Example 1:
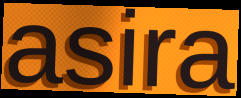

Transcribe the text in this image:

asira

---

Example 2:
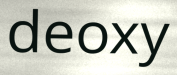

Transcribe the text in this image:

deoxy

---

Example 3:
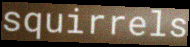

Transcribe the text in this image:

squirrels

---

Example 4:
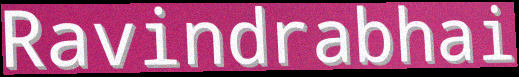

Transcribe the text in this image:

Ravindrabhai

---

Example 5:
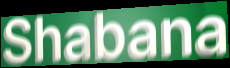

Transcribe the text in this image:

Shabana